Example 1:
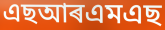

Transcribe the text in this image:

এছআৰএমএছ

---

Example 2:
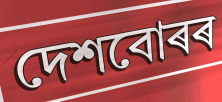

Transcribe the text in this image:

দেশবোৰৰ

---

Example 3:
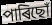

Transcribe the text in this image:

পাৰিছোঁ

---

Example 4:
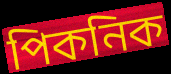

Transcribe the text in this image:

পিকনিক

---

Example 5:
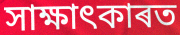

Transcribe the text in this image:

সাক্ষাৎকাৰত